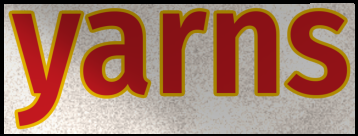
yarns